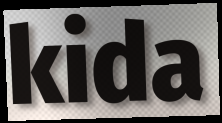
kida